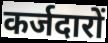
कर्जदारों